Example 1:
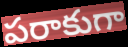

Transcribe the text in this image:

పరాకుగా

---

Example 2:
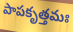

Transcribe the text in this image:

పాపకృత్తమః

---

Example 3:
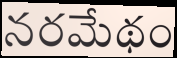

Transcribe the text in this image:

నరమేథం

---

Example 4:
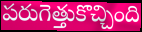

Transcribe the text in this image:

పరుగెత్తుకొచ్చింది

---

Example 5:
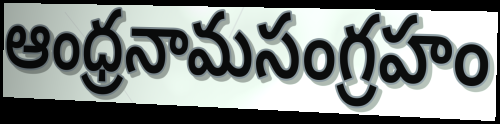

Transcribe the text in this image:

ఆంధ్రనామసంగ్రహం